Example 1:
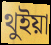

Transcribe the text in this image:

থুইয়া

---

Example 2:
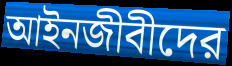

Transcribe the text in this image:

আইনজীবীদের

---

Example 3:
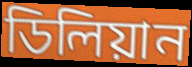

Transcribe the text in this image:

ডিলিয়ান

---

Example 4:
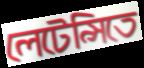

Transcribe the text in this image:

লেটেন্সিতে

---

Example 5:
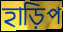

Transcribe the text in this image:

হাড়িপ